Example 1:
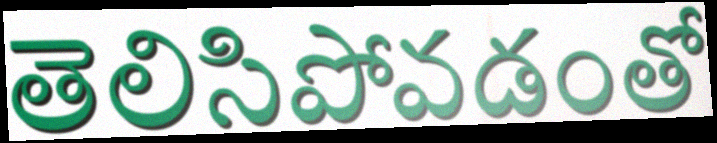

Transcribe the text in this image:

తెలిసిపోవడంతో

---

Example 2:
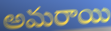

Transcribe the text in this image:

అమరాయి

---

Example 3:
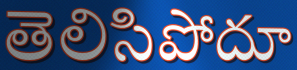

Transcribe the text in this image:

తెలిసిపోదూ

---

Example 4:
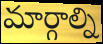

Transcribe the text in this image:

మార్గాల్ని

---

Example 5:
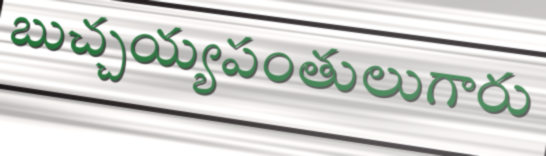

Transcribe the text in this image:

బుచ్చయ్యపంతులుగారు